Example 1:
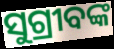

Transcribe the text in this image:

ସୁଗ୍ରୀବଙ୍କ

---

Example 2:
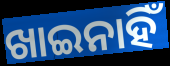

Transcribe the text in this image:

ଖାଇନାହିଁ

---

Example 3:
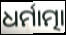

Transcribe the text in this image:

ଧର୍ମାତ୍ମା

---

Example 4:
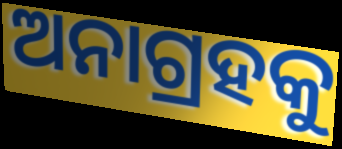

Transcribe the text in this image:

ଅନାଗ୍ରହକୁ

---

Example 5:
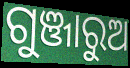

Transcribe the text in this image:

ଗୁଞ୍ଜାରୁଅ